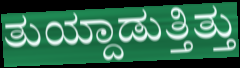
ತುಯ್ದಾಡುತ್ತಿತ್ತು